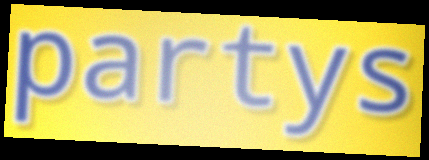
partys